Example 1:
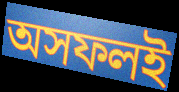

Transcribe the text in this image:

অসফলই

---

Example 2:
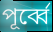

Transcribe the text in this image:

পূর্ব্বে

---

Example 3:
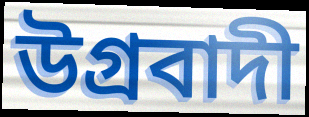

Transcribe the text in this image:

উগ্রবাদী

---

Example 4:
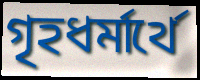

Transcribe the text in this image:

গৃহধর্মার্থে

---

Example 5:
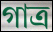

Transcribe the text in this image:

গাত্র